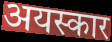
अयस्कार